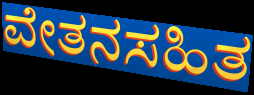
ವೇತನಸಹಿತ